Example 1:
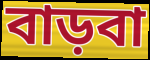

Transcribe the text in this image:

বাড়বা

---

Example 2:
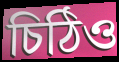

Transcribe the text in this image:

চিঠিও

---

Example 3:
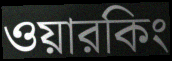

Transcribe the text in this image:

ওয়ারকিং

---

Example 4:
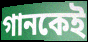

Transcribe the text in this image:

গানকেই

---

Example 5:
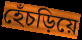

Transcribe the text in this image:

হেঁচড়িয়ে